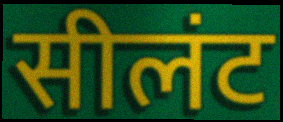
सीलंट